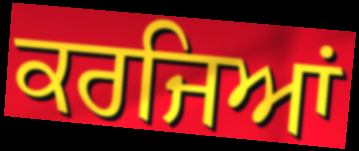
ਕਰਜਿਆਂ